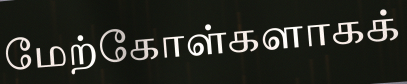
மேற்கோள்களாகக்